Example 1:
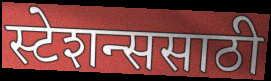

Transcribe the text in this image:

स्टेशन्ससाठी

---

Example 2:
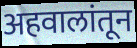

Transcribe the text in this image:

अहवालांतून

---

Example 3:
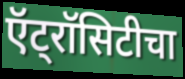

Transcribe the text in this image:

ऍट्रॉसिटीचा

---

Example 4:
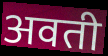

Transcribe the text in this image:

अवती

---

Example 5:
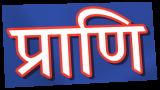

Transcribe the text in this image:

प्राणि